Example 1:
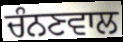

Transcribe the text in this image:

ਚੰਨਣਵਾਲ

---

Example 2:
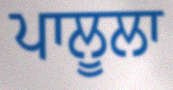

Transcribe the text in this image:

ਪਾਲੂਲਾ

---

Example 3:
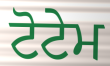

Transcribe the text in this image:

ਟੋਟੇਮ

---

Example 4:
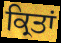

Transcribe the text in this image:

ਕ੍ਰਿਤਾਂ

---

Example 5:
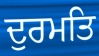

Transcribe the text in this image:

ਦੁਰਮਤਿ